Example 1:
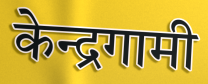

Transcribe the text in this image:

केन्द्रगामी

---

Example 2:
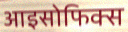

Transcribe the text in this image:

आइसोफिक्स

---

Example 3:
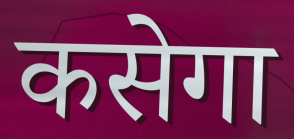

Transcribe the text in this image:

कसेगा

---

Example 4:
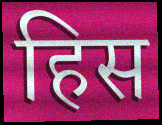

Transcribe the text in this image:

हिस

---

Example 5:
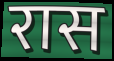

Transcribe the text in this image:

रास